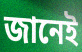
জানেই